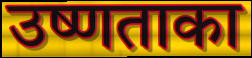
उष्णताका